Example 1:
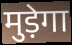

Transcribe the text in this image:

मुड़ेगा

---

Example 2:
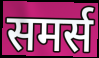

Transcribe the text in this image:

समर्स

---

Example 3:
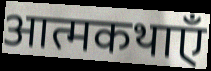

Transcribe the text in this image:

आत्मकथाएँ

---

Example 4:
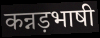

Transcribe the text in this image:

कन्नड़भाषी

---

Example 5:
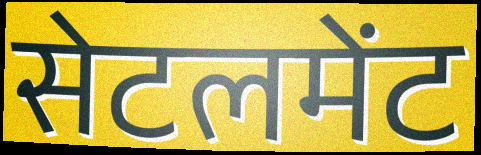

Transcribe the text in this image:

सेटलमेंट